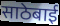
साठेबाई